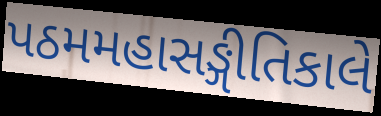
પઠમમહાસઙ્ગીતિકાલે